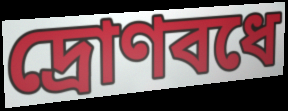
দ্রোণবধে